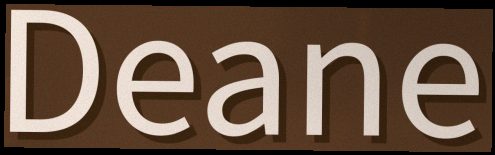
Deane